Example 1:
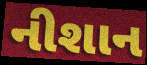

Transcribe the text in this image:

નીશાન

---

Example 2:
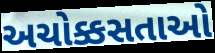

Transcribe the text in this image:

અચોક્કસતાઓ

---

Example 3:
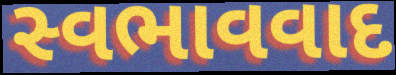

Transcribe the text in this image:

સ્વભાવવાદ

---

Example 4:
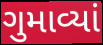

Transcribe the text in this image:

ગુમાવ્યાં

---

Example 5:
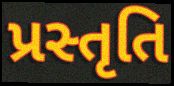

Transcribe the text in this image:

પ્રસ્તૃતિ